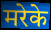
मरेके